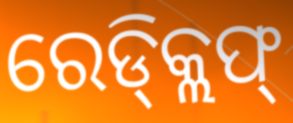
ରେଡ୍କ୍ଲିଫ୍